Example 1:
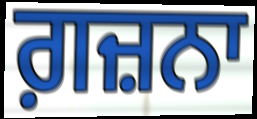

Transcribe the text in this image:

ਗ਼ਜ਼ਨਾ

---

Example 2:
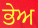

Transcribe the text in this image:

ਭੇਅ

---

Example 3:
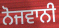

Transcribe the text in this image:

ਨੋਜਵਾਨੀ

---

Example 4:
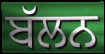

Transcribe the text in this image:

ਬੱਲਨ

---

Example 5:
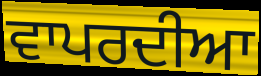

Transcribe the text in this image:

ਵਾਪਰਦੀਆ